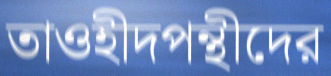
তাওহীদপন্থীদের